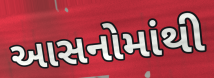
આસનોમાંથી